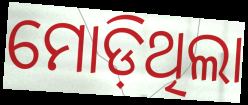
ମୋଡ଼ିଥିଲା